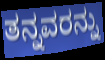
ತನ್ನವರನ್ನು